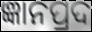
ଜ୍ଞାନପ୍ରଦ